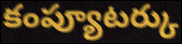
కంప్యూటర్కు